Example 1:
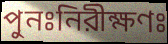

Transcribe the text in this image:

পুনঃনিরীক্ষণঃ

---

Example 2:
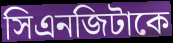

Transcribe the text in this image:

সিএনজিটাকে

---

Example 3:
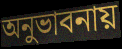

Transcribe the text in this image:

অনুভাবনায়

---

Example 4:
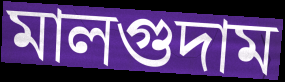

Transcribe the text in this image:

মালগুদাম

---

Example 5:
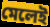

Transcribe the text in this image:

মেলেই